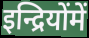
इन्द्रियोंमें